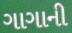
ગાગાની